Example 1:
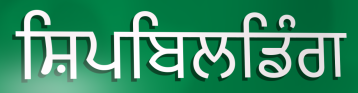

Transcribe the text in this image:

ਸ਼ਿਪਬਿਲਡਿੰਗ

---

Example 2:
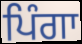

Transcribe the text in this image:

ਪਿੰਗਾ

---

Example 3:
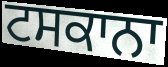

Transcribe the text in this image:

ਟਸਕਾਨਾ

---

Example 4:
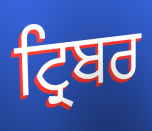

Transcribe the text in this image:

ਟ੍ਰਿਬਰ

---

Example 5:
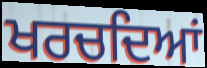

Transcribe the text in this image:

ਖਰਚਦਿਆਂ